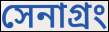
সেনাগ্রং